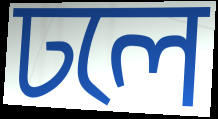
ঢলে